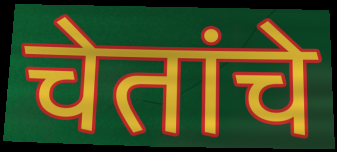
चेतांचे